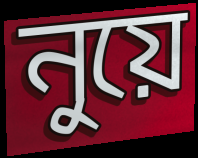
নুয়ে